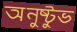
অনুষ্টুভ